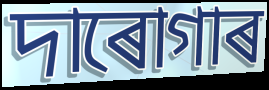
দাৰোগাৰ